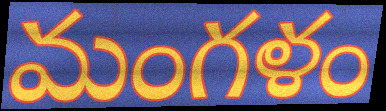
మంగళం